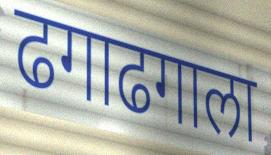
ढगाढगाला